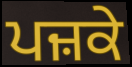
ਪਜ਼ਕੇ